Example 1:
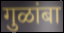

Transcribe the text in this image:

गुळांबा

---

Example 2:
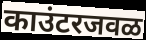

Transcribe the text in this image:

काउंटरजवळ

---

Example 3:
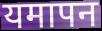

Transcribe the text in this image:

यमापन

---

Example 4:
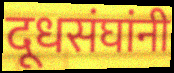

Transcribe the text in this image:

दूधसंघांनी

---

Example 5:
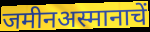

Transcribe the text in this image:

जमीनअस्मानाचें